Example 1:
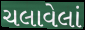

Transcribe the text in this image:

ચલાવેલાં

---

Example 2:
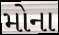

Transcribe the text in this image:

મોના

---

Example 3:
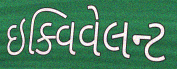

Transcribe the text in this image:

ઇક્વિવેલન્ટ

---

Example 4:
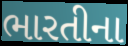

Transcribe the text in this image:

ભારતીના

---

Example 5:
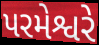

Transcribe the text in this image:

પરમેશ્વરે